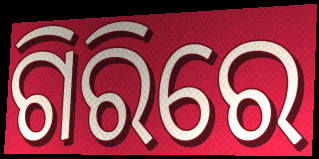
ଗିରିରେ